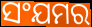
ସଂଯମର